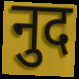
नुद